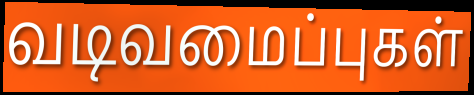
வடிவமைப்புகள்